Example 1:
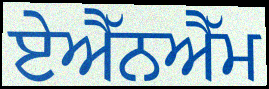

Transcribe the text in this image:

ਏਐੱਨਐੱਮ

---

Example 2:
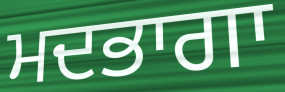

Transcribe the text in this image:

ਮਦਭਾਗਾ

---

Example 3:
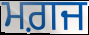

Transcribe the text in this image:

ਮਗ਼ਜ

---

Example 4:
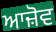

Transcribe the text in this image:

ਆਜ਼ੋਵ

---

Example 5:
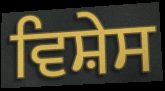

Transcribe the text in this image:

ਵਿਸ਼ੇਸ